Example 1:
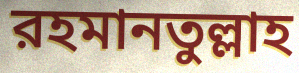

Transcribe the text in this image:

রহমানতুল্লাহ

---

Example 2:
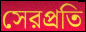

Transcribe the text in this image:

সেরপ্রতি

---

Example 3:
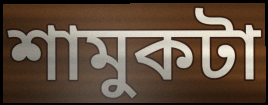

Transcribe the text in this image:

শামুকটা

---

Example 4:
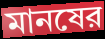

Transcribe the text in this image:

মানষের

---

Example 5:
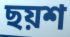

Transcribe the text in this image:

ছয়শ